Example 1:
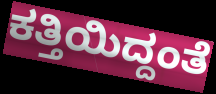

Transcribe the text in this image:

ಕತ್ತಿಯಿದ್ದಂತೆ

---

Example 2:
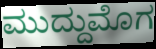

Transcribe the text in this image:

ಮುದ್ದುಮೊಗ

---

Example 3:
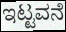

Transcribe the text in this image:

ಇಟ್ಟವನೆ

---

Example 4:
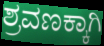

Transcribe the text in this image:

ಶ್ರವಣಕ್ಕಾಗಿ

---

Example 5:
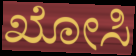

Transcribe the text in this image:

ಖೋಸಿ